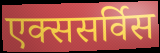
एक्ससर्विस